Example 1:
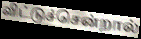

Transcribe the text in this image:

விட்டுச்சென்றால்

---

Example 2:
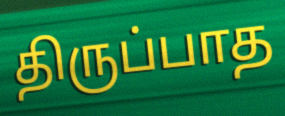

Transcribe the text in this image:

திருப்பாத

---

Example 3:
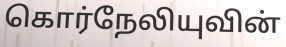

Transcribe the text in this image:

கொர்நேலியுவின்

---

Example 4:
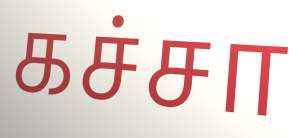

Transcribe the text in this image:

கச்சா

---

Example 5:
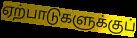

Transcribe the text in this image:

ஏற்பாடுகளுக்குப்